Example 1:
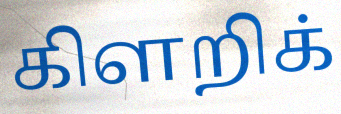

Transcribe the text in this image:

கிளறிக்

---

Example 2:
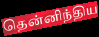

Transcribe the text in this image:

தென்னிந்திய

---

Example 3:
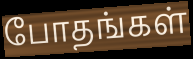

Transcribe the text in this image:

போதங்கள்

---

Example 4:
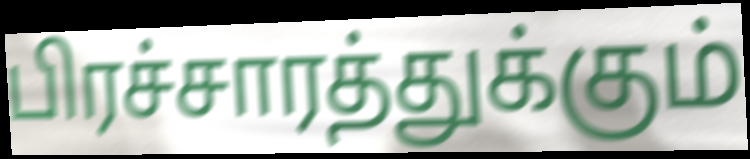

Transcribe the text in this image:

பிரச்சாரத்துக்கும்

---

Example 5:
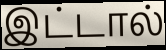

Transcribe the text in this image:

இட்டால்